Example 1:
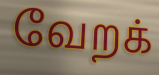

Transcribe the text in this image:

வேறக்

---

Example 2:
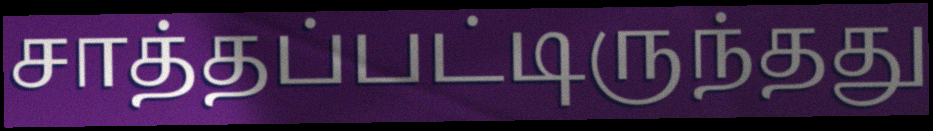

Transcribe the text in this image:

சாத்தப்பட்டிருந்தது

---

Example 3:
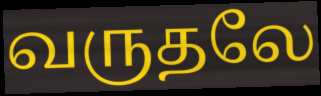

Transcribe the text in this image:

வருதலே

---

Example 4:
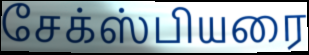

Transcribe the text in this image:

சேக்ஸ்பியரை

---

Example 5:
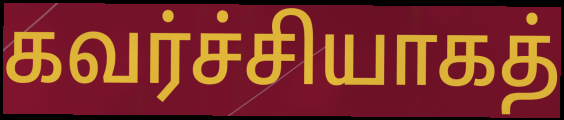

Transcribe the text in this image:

கவர்ச்சியாகத்